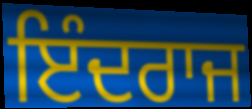
ਇੰਦਰਾਜ